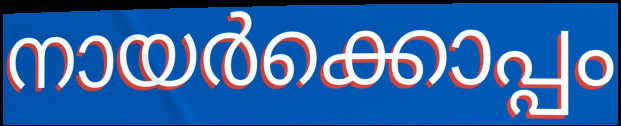
നായർക്കൊപ്പം